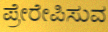
ಪ್ರೇರೇಪಿಸುವ